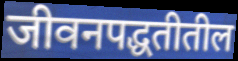
जीवनपद्धतीतील